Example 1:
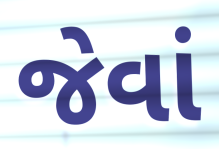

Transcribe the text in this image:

જેવાં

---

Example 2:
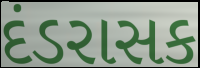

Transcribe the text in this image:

દંડરાસક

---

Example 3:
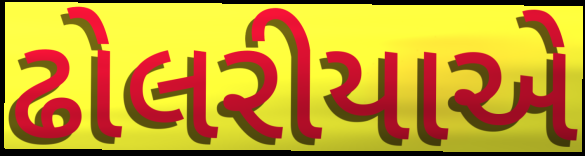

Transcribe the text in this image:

ઢોલરીયાએ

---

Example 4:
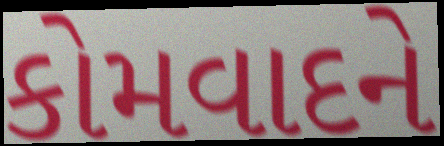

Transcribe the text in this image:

કોમવાદને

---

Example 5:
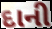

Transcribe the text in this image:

દાની